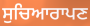
ਸੁਚਿਆਰਾਪਣ